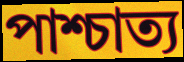
পাশ্চাত্য